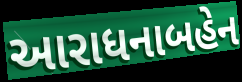
આરાધનાબહેન